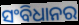
ସଂବିଧାନର